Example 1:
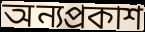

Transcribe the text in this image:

অন্যপ্রকাশ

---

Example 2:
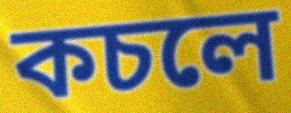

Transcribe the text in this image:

কচলে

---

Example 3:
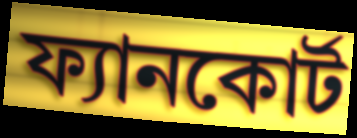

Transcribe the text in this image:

ফ্যানকোর্ট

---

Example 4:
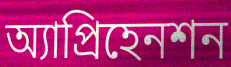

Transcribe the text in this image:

অ্যাপ্রিহেনশন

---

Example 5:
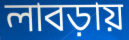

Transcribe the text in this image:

লাবড়ায়